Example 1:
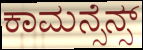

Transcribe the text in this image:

ಕಾಮನ್ಸೆನ್ಸ್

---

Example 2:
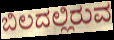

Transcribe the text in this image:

ಬಿಲದಲ್ಲಿರುವ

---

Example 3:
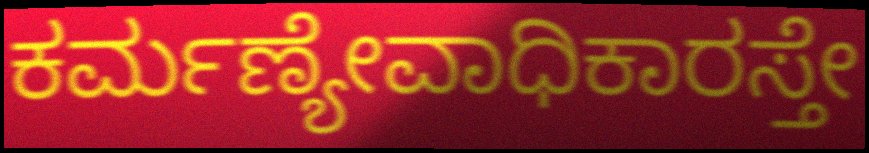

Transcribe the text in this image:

ಕರ್ಮಣ್ಯೇವಾಧಿಕಾರಸ್ತೇ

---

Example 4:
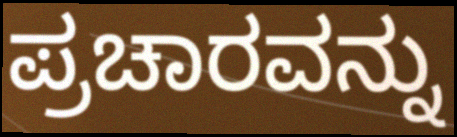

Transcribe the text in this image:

ಪ್ರಚಾರವನ್ನು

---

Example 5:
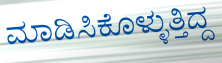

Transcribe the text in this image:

ಮಾಡಿಸಿಕೊಳ್ಳುತ್ತಿದ್ದ